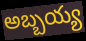
అబ్బయ్య